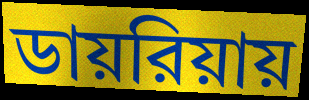
ডায়রিয়ায়